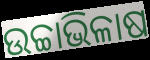
ଉଚ୍ଚାଭିଳାଷ